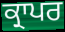
ਕ੍ਰਾਪਰ